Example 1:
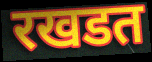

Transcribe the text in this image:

रखडत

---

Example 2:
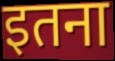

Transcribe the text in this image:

इतना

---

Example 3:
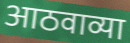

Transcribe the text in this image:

आठवाव्या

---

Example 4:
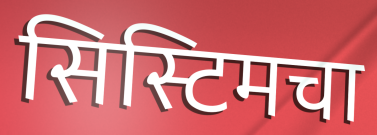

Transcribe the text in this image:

सिस्टिमचा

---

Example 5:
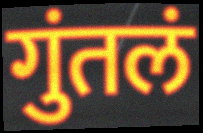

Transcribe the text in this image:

गुंतलं